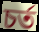
চৰ্ত